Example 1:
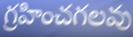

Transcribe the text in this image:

గ్రహించగలవు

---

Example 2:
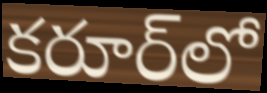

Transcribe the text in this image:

కరూర్‌లో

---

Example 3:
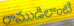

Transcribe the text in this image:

రాముడిలాంటి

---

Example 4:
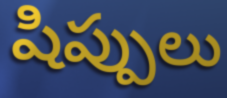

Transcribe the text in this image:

షిప్పులు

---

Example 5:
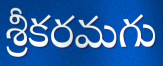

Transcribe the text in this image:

శ్రీకరమగు